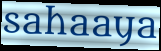
sahaaya